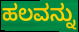
ಹಲವನ್ನು